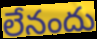
లేనందు